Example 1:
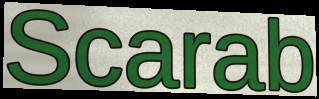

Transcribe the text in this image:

Scarab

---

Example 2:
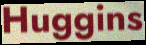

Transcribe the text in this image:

Huggins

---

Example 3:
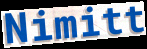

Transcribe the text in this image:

Nimitt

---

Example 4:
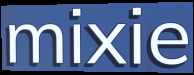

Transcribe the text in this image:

mixie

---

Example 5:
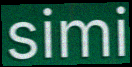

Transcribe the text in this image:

simi